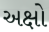
અક્ષો